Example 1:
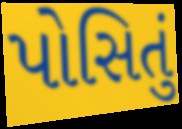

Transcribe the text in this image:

પોસિતું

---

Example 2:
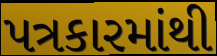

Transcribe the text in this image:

પત્રકારમાંથી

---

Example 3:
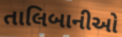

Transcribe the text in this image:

તાલિબાનીઓ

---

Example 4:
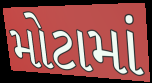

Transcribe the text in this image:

મોટામાં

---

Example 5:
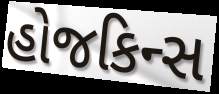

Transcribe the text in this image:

હોજકિન્સ